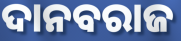
ଦାନବରାଜ